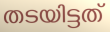
തടയിട്ടത്